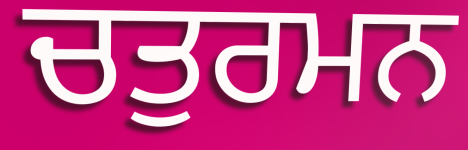
ਚਤੁਰਮਨ